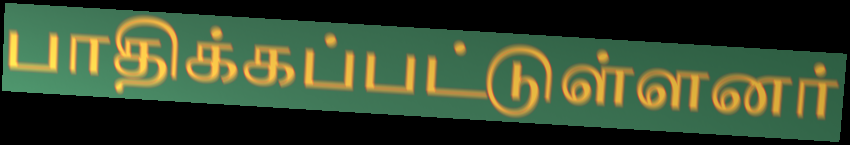
பாதிக்கப்பட்டுள்ளனர்